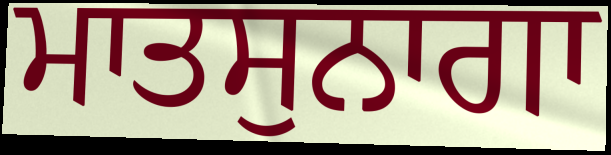
ਮਾਤਸੁਨਾਗਾ